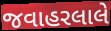
જવાહરલાલે